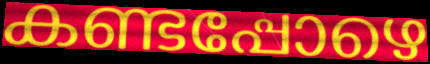
കണ്ടപ്പോഴെ